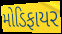
મોડિફાયર